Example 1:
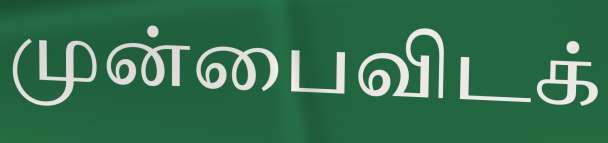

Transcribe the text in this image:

முன்பைவிடக்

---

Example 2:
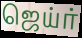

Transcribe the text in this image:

ஜெய்ர்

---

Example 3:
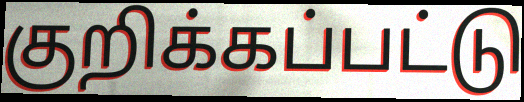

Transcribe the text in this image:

குறிக்கப்பட்டு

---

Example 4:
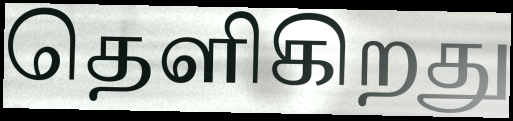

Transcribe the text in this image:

தெளிகிறது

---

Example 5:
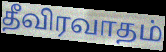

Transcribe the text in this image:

தீவிரவாதம்